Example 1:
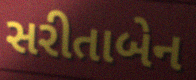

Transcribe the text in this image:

સરીતાબેન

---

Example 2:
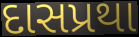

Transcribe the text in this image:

દાસપ્રથા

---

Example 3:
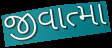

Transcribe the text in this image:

જીવાત્મા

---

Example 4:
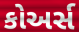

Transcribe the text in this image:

કોઅર્સ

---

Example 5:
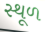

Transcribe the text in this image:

સ્‍થૂળ